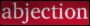
abjection